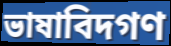
ভাষাবিদগণ